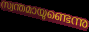
സ്വന്തമായുണ്ടെന്നു